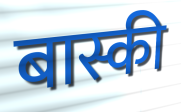
बास्की